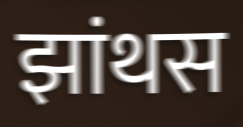
झांथस